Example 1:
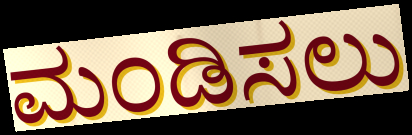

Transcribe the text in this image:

ಮಂಡಿಸಲು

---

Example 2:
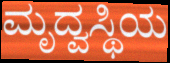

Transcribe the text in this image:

ಮೃದ್ವಸ್ಥಿಯ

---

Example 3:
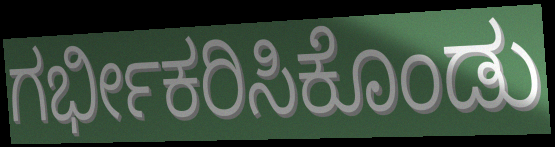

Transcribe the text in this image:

ಗರ್ಭೀಕರಿಸಿಕೊಂಡು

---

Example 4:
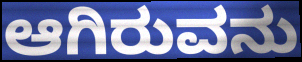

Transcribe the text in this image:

ಆಗಿರುವನು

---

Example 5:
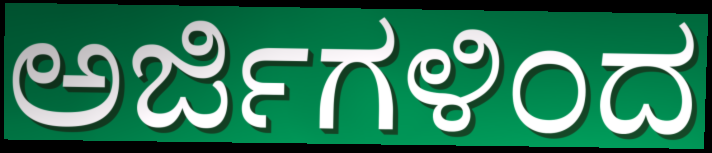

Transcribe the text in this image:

ಅರ್ಜಿಗಳಿಂದ